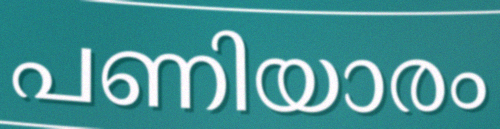
പണിയാരം